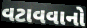
વટાવવાનો